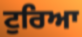
ਟੁਰਿਆ